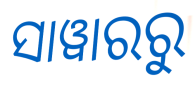
ସାୱାରରୁ